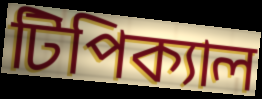
টিপিক্যাল